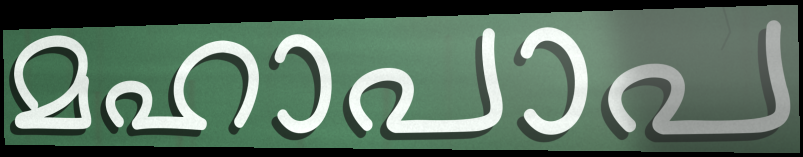
മഹാപാപ